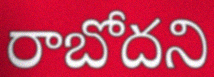
రాబోదని